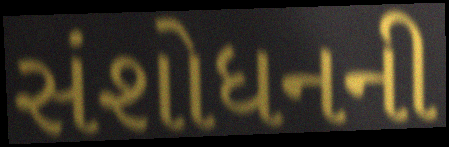
સંશોધનની